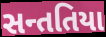
સન્તતિયા